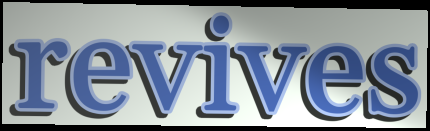
revives